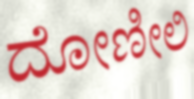
ದೋಣೀಲಿ